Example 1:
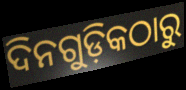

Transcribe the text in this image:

ଦିନଗୁଡ଼ିକଠାରୁ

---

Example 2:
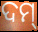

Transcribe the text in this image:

ଦମ୍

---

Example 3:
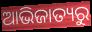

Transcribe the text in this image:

ଆଭିଜାତ୍ୟରୁ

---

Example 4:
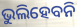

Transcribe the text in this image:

ଭୁଲିହେବନି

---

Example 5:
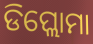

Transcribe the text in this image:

ଡିପ୍ଲୋମା